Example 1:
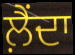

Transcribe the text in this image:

ਲ਼ੈਂਦਾ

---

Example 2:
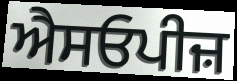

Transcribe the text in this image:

ਐਸਓਪੀਜ਼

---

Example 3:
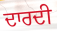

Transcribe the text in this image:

ਦਾਰਦੀ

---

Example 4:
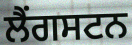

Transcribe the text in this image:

ਲੈਂਗਸਟਨ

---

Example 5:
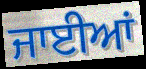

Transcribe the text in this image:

ਜਾਈਆਂ